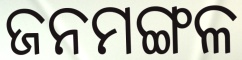
ଜନମଙ୍ଗଳ